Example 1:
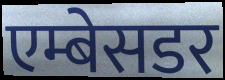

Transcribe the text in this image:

एम्‍बेसडर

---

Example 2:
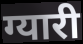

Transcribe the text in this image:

ग्यारी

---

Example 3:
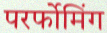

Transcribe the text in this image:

परर्फोमिंग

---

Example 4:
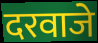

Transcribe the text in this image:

दरवाजे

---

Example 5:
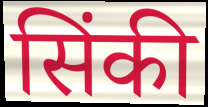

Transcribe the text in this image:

सिंकी